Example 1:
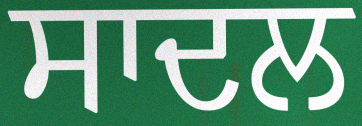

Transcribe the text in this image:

ਸਾਦਲ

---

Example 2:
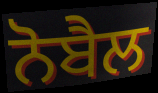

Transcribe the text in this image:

ਨੋਬੈਲ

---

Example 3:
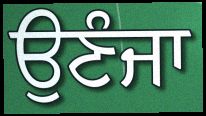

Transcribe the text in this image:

ਉਣੰਜਾ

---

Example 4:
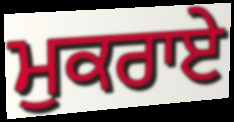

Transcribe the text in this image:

ਮੁਕਰਾਏ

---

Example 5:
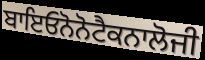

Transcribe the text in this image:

ਬਾਇਓਨੋਨੋਟੈਕਨਾਲੋਜੀ